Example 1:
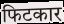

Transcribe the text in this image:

फिटकार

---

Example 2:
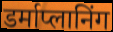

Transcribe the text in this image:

डर्माप्लानिंग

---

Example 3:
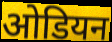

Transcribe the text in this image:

ओडियन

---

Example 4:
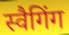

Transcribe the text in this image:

स्वैगिंग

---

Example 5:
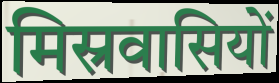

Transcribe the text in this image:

मिस्रवासियों